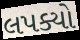
લપક્યો